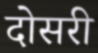
दोसरी